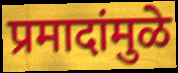
प्रमादांमुळे